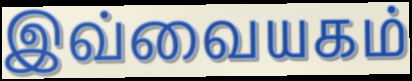
இவ்வையகம்